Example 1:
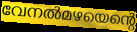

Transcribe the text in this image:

വേനൽമഴയെന്റെ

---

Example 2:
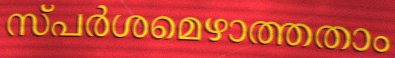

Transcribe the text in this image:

സ്പർശമെഴാത്തതാം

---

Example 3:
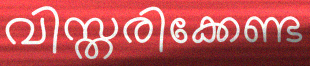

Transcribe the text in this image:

വിസ്തരിക്കേണ്ട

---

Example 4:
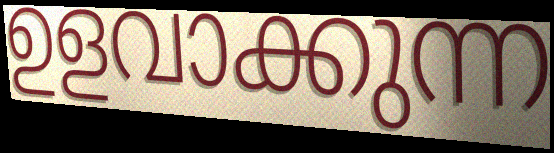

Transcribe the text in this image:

ഉളവാക്കുന്ന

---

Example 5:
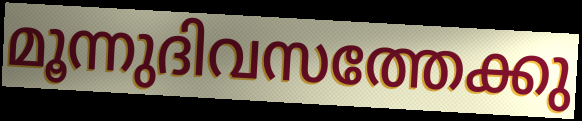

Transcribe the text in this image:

മൂന്നുദിവസത്തേക്കു